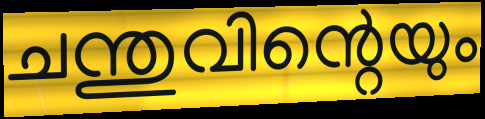
ചന്തുവിന്റെയും